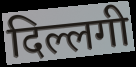
दिल्‍लगी